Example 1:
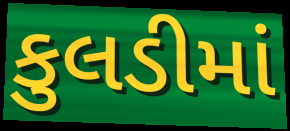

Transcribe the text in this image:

કુલડીમાં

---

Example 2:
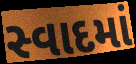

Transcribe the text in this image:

સ્વાદમાં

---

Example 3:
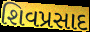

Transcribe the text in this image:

શિવપ્રસાદ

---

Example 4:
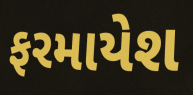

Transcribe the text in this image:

ફરમાયેશ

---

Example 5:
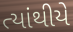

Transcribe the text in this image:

ત્યાંથીયે